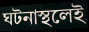
ঘটনাস্থলেই